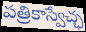
పత్రికాస్వేచ్ఛ